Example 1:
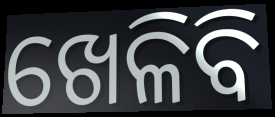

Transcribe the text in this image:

ଖେଳିବି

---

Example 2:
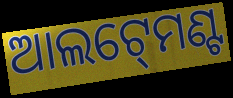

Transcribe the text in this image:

ଆଲଟ୍‍ମେଣ୍ଟ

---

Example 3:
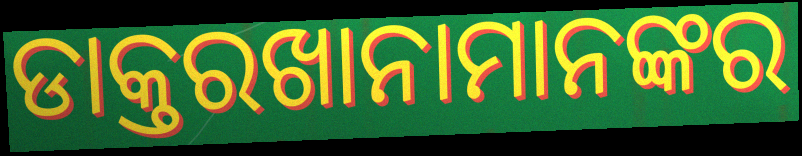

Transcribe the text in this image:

ଡାକ୍ତରଖାନାମାନଙ୍କର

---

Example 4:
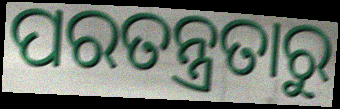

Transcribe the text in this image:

ପରତନ୍ତ୍ରତାରୁ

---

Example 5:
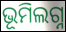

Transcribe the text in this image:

ଭୂମିଲଗ୍ନ